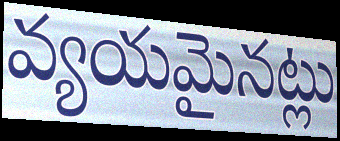
వ్యయమైనట్లు